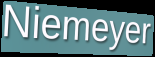
Niemeyer